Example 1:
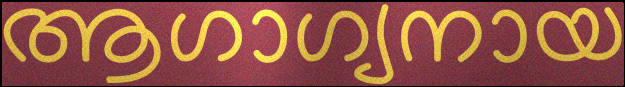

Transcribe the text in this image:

ആഗാഗ്യനായ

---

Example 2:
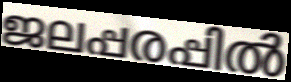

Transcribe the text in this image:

ജലപ്പരപ്പിൽ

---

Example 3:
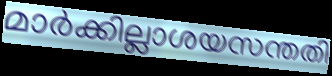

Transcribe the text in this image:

മാർക്കില്ലാശയസന്തതി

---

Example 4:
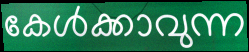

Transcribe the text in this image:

കേൾക്കാവുന്ന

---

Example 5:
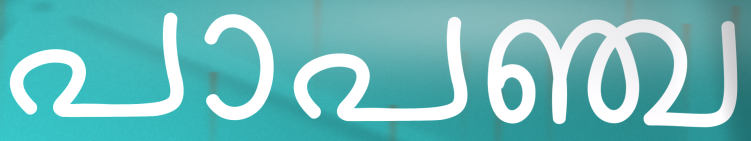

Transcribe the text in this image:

പാപഞ്ച